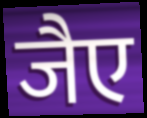
जैए